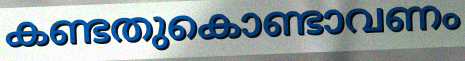
കണ്ടതുകൊണ്ടാവണം